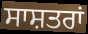
ਸਾਸ਼ਤਰਾਂ